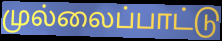
முல்லைப்பாட்டு